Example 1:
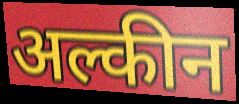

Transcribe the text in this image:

अल्कीन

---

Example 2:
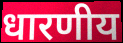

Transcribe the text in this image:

धारणीय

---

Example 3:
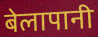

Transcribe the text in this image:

बेलापानी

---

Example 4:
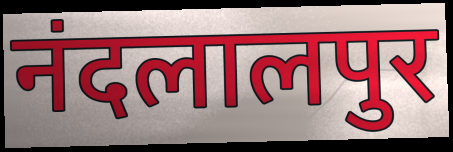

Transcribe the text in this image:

नंदलालपुर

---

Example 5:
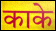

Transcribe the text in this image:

काके